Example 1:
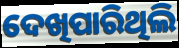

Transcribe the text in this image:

ଦେଖିପାରିଥିଲି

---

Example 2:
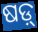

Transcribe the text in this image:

ଷଡ଼୍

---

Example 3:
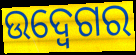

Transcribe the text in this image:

ଉଦ୍ବେଗର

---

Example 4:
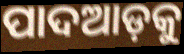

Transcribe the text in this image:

ପାଦଆଡ଼କୁ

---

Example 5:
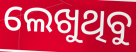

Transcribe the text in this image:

ଲେଖୁଥିବୁ